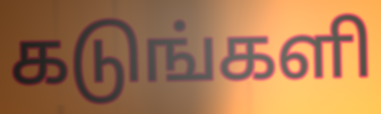
கடுங்களி